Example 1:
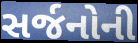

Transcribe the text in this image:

સર્જનોની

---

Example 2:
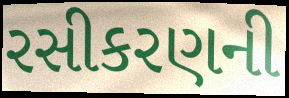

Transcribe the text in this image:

રસીકરણની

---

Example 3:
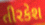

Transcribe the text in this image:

તીરકેશ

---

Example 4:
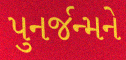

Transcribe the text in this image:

પુનર્જન્મને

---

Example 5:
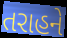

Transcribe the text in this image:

તરાહને